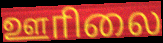
ஊரிலை